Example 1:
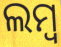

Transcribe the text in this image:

ଲମ୍ୱ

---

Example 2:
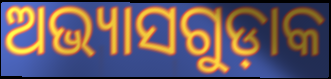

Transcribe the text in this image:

ଅଭ୍ୟାସଗୁଡ଼ାକ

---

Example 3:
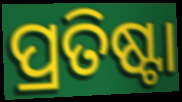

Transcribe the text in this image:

ପ୍ରତିଷ୍ଟା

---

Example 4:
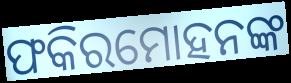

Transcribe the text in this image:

ଫକିରମୋହନଙ୍କ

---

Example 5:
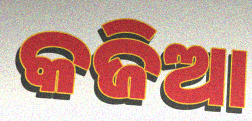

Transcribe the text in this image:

କଜିଆ